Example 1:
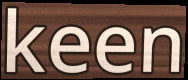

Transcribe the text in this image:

keen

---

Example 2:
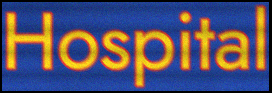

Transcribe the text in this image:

Hospital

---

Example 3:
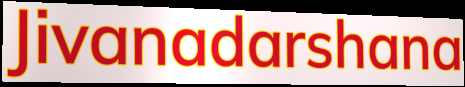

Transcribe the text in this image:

Jivanadarshana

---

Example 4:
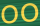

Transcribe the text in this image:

oo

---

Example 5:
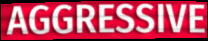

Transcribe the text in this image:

AGGRESSIVE